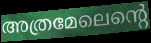
അത്രമേലെന്റെ